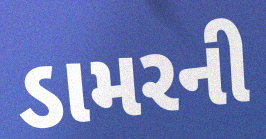
ડામરની